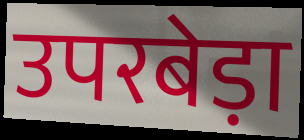
उपरबेड़ा